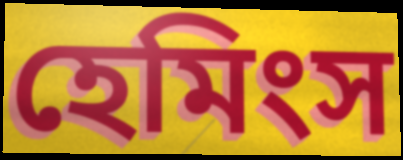
হেমিংস